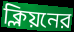
ক্লিয়নের